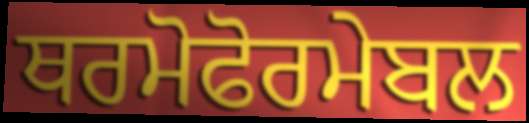
ਥਰਮੋਫੋਰਮੇਬਲ